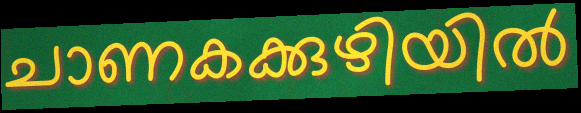
ചാണകക്കുഴിയിൽ